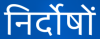
निर्दोषों